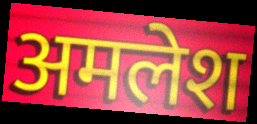
अमलेश